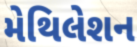
મેથિલેશન